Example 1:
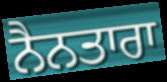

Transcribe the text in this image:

ਨੈਨਤਾਰਾ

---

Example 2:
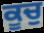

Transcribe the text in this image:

ਕੂਚੁ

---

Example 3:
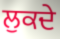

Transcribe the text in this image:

ਲੁਕਦੇ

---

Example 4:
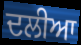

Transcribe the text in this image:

ਦਲੀਆ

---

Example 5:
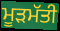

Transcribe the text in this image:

ਮੂੜਮੱਤੀ